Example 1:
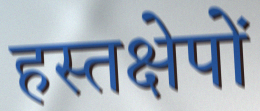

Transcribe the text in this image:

हस्तक्षेपों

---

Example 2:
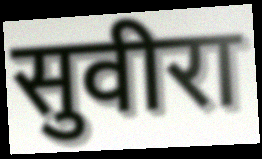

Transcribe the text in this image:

सुवीरा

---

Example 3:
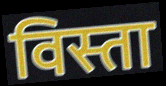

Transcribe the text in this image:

विस्ता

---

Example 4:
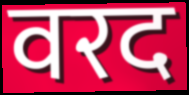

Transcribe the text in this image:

वरद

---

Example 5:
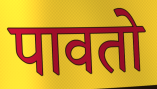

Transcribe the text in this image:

पावतो